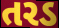
તરડ